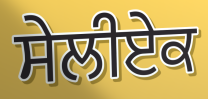
ਸੇਲੀਏਕ